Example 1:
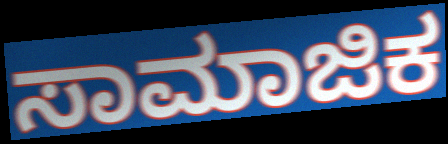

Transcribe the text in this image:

ಸಾಮಾಜಿಕ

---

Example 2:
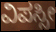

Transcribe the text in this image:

ವಿಪಸ್ಸೀ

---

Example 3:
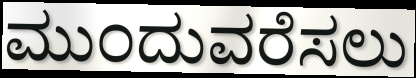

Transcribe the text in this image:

ಮುಂದುವರೆಸಲು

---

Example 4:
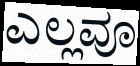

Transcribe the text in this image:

ಎಲ್ಲವೂ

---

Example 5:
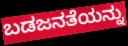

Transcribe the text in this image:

ಬಡಜನತೆಯನ್ನು